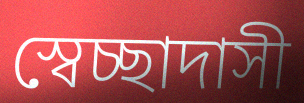
স্বেচ্ছাদাসী